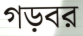
গড়বর